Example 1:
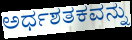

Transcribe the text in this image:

ಅರ್ಧಶತಕವನ್ನು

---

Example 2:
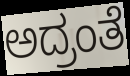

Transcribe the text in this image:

ಅದ್ರಂತೆ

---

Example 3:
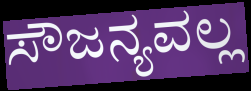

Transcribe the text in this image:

ಸೌಜನ್ಯವಲ್ಲ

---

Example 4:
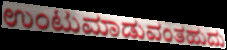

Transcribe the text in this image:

ಉಂಟುಮಾಡುವಂತಹುದು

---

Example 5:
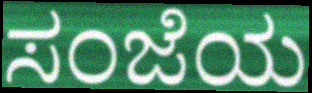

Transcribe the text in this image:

ಸಂಜೆಯ